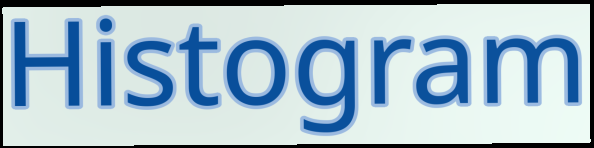
Histogram